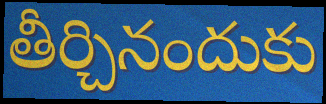
తీర్చినందుకు